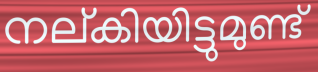
നല്കിയിട്ടുമുണ്ട്